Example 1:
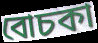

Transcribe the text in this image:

বোচকা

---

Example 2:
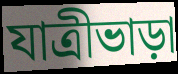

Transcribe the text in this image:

যাত্রীভাড়া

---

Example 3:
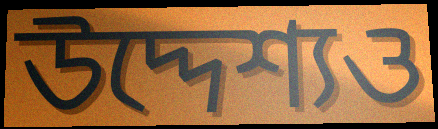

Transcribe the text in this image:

উদ্দেশ্যও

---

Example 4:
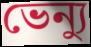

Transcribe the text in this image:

ভেন্যু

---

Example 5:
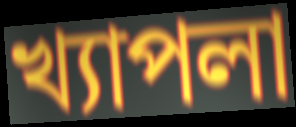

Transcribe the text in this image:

খ্যাপলা